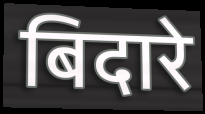
बिदारे